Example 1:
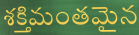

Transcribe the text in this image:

శక్తిమంతమైన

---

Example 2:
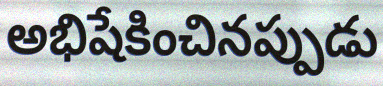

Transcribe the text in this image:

అభిషేకించినప్పుడు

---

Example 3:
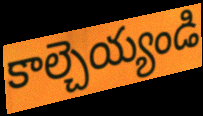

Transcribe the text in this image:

కాల్చెయ్యండి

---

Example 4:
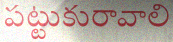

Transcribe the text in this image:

పట్టుకురావాలి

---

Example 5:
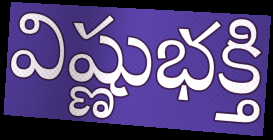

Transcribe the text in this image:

విష్ణుభక్తి